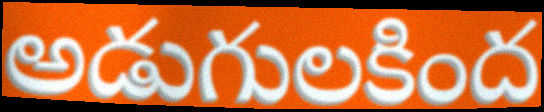
అడుగులకింద